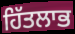
ਹਿੱਤਲਾਭ